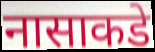
नासाकडे